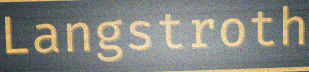
Langstroth